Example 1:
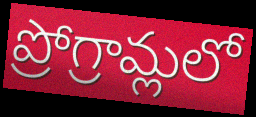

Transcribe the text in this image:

ప్రోగ్రామ్లలో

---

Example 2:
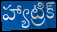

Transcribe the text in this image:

హ్యాట్రిక్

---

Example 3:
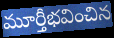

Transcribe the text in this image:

మూర్తీభవించిన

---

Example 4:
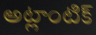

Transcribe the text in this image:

అట్లాంటిక్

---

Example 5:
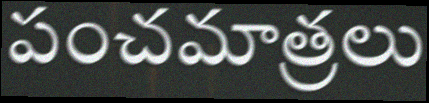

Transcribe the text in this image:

పంచమాత్రలు